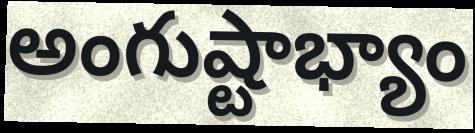
అంగుష్టాభ్యాం